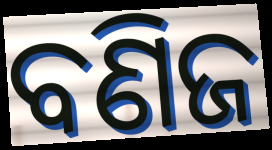
ବଣିଜ